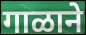
गाळाने